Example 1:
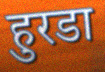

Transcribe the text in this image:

हुरडा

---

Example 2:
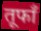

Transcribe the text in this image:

तूफाँ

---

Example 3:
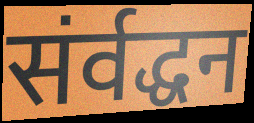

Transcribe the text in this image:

संर्वद्धन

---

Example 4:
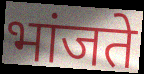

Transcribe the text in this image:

भांजते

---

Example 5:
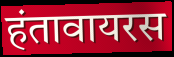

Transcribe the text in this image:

हंतावायरस